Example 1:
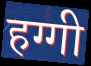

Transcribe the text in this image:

हग्गी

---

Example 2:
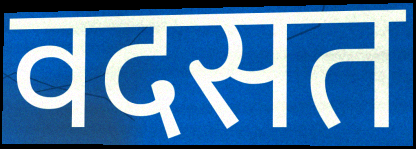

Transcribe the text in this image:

वदसत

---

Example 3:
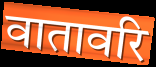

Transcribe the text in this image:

वातावरि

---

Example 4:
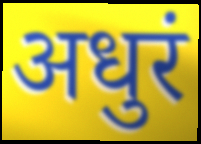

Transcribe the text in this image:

अधुरं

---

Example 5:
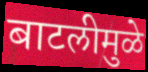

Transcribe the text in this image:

बाटलीमुळे